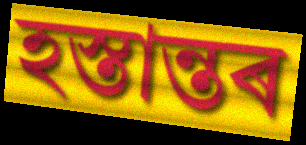
হস্তান্তৰ